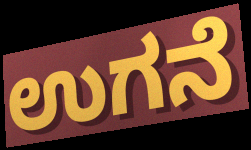
ಉಗನೆ